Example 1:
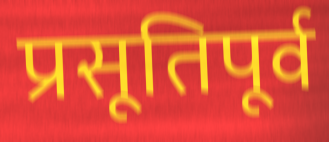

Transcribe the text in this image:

प्रसूतिपूर्व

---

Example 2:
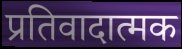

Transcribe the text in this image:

प्रतिवादात्मक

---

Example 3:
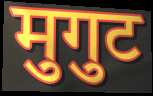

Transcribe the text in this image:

मुगुट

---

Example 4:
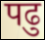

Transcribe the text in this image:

पढु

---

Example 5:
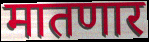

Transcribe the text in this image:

मातणार